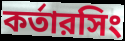
কর্তারসিং